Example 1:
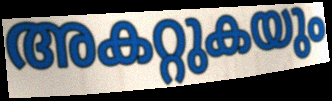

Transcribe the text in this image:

അകറ്റുകയും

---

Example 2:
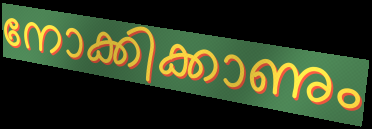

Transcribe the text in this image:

നോക്കിക്കാണും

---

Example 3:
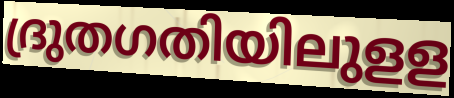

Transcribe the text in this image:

ദ്രുതഗതിയിലുളള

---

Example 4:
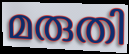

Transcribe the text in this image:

മരുതി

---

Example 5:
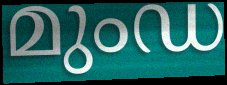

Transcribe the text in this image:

മുംഡ